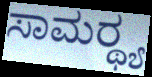
ಸಾಮರ್‍ಥ್ಯ